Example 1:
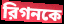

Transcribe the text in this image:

রিগনকে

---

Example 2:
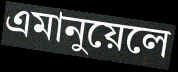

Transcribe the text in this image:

এমানুয়েলে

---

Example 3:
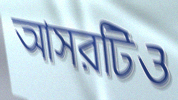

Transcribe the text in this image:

আসরটিও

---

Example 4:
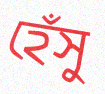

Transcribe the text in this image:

হেঁসু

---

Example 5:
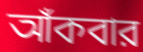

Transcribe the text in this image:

আঁকবার